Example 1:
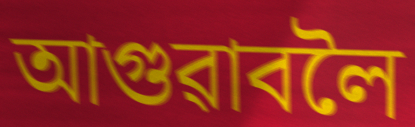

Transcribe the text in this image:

আগুৱাবলৈ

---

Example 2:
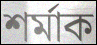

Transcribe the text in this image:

শৰ্মাক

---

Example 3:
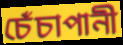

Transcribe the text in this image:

চেঁচাপানী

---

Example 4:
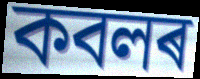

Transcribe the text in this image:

কবলৰ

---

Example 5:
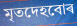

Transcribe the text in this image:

মৃতদেহবোৰ